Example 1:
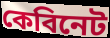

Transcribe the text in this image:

কেবিনেট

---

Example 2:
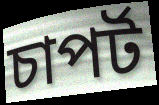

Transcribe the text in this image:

চাপৰ্ট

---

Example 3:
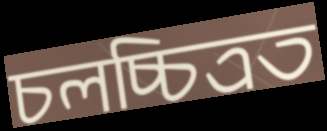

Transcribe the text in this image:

চলচ্চিত্ৰত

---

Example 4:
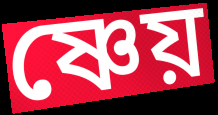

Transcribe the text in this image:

ষ্ণেয়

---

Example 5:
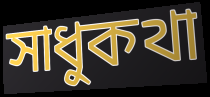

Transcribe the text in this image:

সাধুকথা